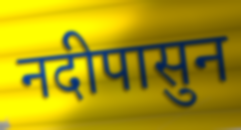
नदीपासुन